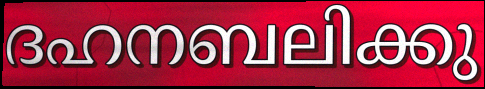
ദഹനബലിക്കു